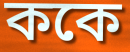
ককে